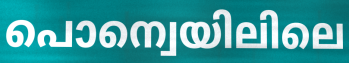
പൊന്വെയിലിലെ